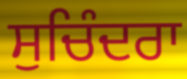
ਸੁਚਿੰਦਰਾ